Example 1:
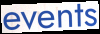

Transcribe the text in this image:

events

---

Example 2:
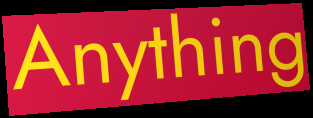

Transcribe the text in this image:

Anything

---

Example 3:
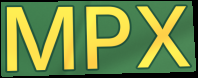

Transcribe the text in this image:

MPX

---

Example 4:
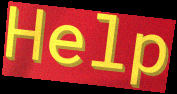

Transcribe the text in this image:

Help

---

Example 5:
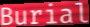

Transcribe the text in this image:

Burial